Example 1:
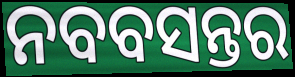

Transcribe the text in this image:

ନବବସନ୍ତର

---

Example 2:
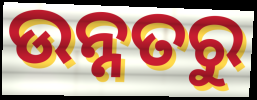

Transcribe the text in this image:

ଉନ୍ନତରୁ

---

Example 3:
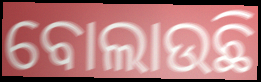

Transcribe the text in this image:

ବୋଲାଉଛି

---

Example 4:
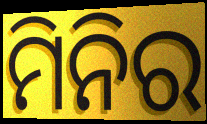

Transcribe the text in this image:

ମିନିର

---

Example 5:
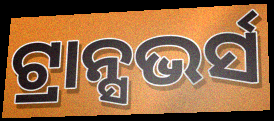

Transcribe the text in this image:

ଟ୍ରାନ୍ସଭର୍ସ